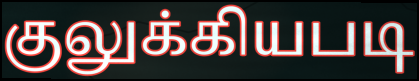
குலுக்கியபடி